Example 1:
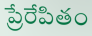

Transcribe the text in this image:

ప్రేరేపితం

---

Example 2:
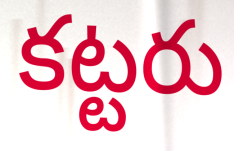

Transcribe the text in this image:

కట్టరు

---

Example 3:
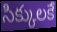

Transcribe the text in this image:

సిక్కులకే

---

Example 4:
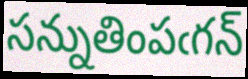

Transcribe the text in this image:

సన్నుతింపఁగన్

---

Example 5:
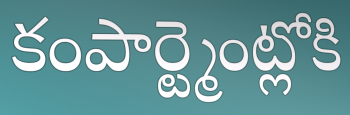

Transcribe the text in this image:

కంపార్ట్మెంట్లోకి